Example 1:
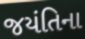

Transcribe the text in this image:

જયંતિના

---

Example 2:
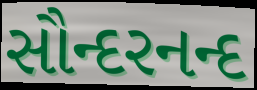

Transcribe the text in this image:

સૌન્દરનન્દ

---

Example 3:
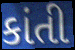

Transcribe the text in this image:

કાંતી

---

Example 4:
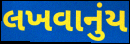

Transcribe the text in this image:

લખવાનુંય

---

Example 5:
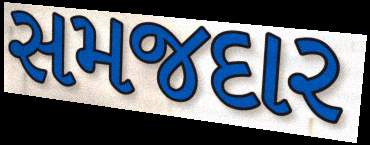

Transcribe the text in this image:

સમજદાર